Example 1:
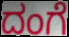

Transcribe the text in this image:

ದಂಗೆ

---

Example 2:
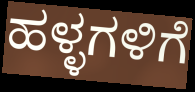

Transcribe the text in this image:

ಹಳ್ಳಗಳಿಗೆ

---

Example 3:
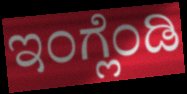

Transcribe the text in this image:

ಇಂಗ್ಲೆಂಡಿ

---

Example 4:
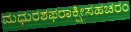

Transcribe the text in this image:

ಮಧುರಶಫರಾಕ್ಷೀಸಹಚರಂ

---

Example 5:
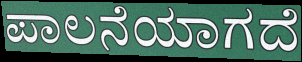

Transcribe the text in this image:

ಪಾಲನೆಯಾಗದೆ